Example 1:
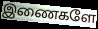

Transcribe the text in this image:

இணைகளே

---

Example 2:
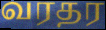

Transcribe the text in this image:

வரதர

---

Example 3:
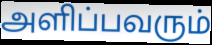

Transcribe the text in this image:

அளிப்பவரும்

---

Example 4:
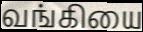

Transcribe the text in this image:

வங்கியை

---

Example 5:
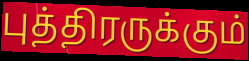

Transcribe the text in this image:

புத்திரருக்கும்